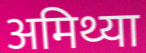
अमिथ्या